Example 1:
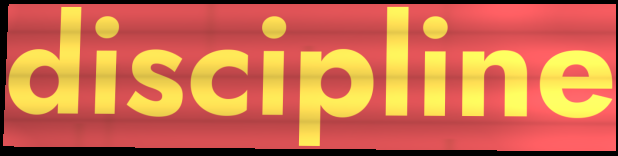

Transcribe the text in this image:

discipline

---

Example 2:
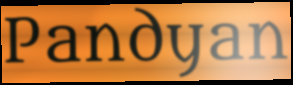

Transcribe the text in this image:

Pandyan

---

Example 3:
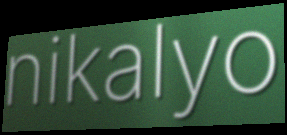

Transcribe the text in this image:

nikalyo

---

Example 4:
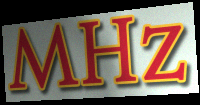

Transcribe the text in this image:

MHz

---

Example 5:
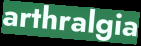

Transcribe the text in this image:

arthralgia